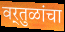
वर्तुळांचा